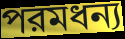
পরমধন্য